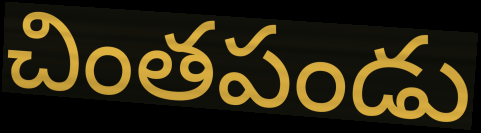
చింతపండు